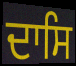
ਦਾਸਿ